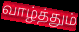
வாழ்த்தும்